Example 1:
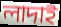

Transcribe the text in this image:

লাদাই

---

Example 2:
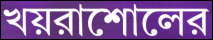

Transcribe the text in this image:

খয়রাশোলের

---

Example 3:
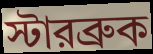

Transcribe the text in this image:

স্টারব্রুক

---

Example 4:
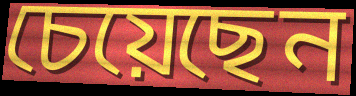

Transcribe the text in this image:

চেয়েছেন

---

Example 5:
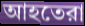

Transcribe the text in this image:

আহতেরা